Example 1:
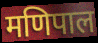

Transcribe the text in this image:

मणिपाल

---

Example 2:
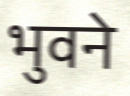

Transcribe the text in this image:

भुवने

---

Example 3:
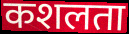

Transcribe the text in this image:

कशलता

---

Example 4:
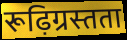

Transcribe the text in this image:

रूढ़िग्रस्तता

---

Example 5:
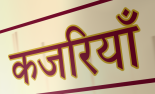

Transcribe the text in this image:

कजरियाँ